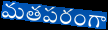
మతపరంగా